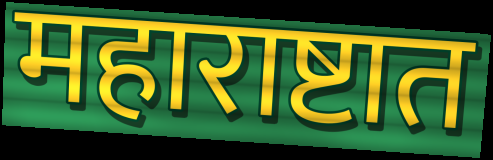
महाराष्टात